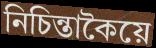
নিচিন্তাকৈয়ে